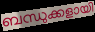
ബന്ധുക്കളായി